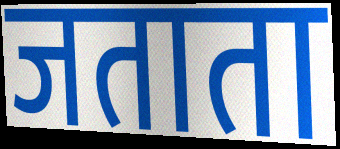
जताता